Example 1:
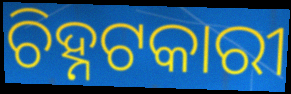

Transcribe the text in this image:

ଚିହ୍ନଟକାରୀ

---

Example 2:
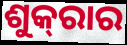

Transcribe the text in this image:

ଶୁକ୍‌ରାର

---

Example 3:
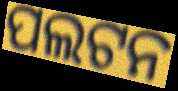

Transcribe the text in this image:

ପଲଟନ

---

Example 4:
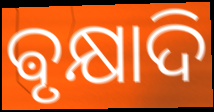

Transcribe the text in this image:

ଵୃକ୍ଷାଦି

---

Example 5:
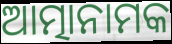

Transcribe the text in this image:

ଆତ୍ମାନାମକ